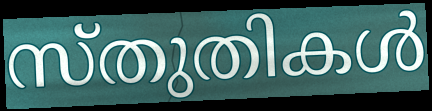
സ്തുതികൾ